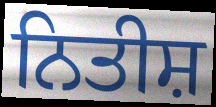
ਨਿਤੀਸ਼